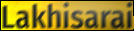
Lakhisarai